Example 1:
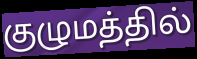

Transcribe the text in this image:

குழுமத்தில்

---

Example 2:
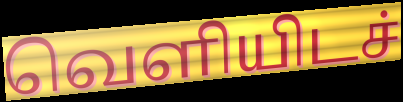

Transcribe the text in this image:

வெளியிடச்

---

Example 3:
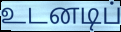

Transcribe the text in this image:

உடனடிப்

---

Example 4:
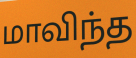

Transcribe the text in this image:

மாவிந்த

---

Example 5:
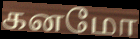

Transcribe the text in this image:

கனமோ